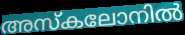
അസ്കലോനിൽ